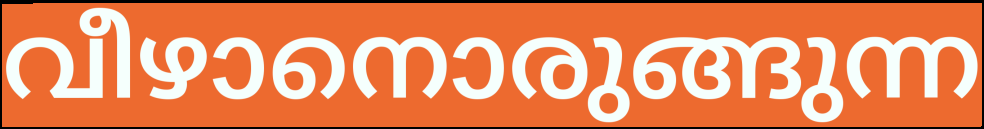
വീഴാനൊരുങ്ങുന്ന